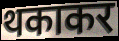
थकाकर